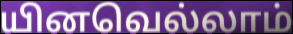
யினவெல்லாம்